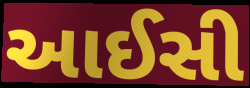
આઈસી